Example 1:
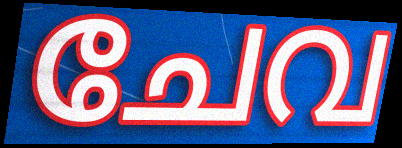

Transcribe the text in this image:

ചേവ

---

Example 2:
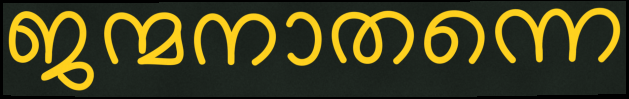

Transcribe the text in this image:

ജന്മനാതന്നെ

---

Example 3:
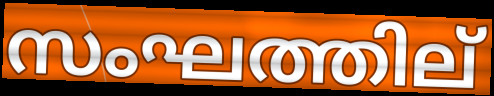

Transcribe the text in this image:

സംഘത്തില്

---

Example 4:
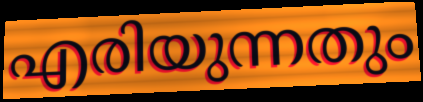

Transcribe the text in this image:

എരിയുന്നതും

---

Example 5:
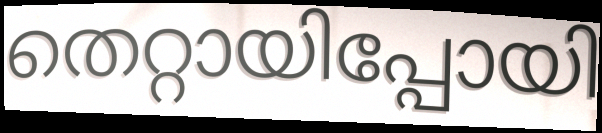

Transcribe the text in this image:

തെറ്റായിപ്പോയി